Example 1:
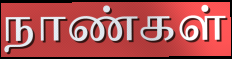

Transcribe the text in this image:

நாண்கள்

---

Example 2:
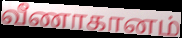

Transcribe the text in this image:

வீணாகானம்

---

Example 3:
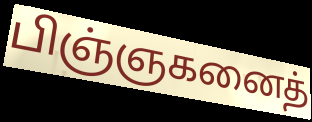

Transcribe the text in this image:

பிஞ்ஞகனைத்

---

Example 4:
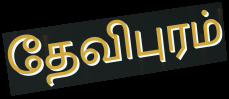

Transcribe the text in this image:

தேவிபுரம்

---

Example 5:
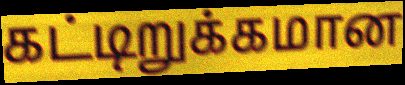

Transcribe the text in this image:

கட்டிறுக்கமான